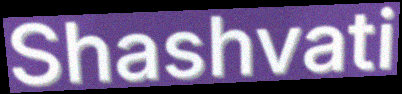
Shashvati